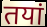
तयां